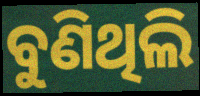
ବୁଣିଥିଲି